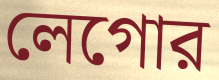
লেগোর